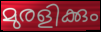
മുരളിക്കും